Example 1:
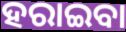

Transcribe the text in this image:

ହରାଇବା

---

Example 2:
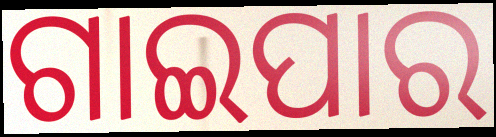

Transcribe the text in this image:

ଗାଇପାର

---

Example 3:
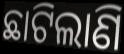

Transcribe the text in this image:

ଛାଟିଲାଣି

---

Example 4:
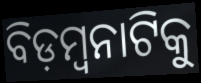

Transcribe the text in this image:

ବିଡ଼ମ୍ବନାଟିକୁ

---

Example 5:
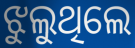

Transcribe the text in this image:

ଝୁଲୁଥିଲେ